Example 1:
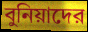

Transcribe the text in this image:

বুনিয়াদের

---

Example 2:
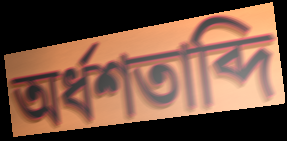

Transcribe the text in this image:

অর্ধশতাব্দি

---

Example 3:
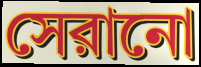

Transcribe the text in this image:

সেরানো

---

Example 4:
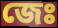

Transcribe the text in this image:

জেঃ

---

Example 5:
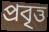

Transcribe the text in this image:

প্রবৃত্ত